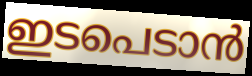
ഇടപെടാൻ